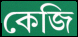
কেজি